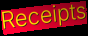
Receipts